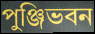
পুঞ্জিভবন